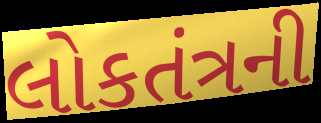
લોકતંત્રની